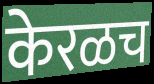
केरळच